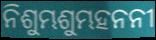
ନିଶୁମ୍ଭଶୁମ୍ଭହନନୀ